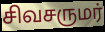
சிவசருமர்